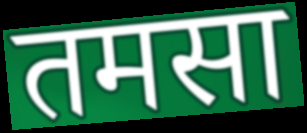
तमसा